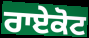
ਰਾਏਕੋਟ